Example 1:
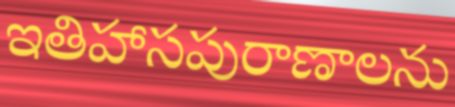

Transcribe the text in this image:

ఇతిహాసపురాణాలను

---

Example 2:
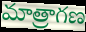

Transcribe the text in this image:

మాత్రాగణ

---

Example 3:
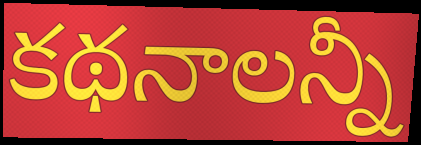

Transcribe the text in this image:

కథనాలన్నీ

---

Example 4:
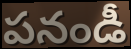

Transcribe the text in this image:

పనండీ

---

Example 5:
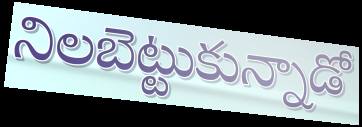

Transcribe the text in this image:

నిలబెట్టుకున్నాడో